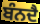
ਬੰਨਦੈ